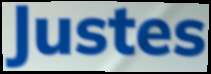
Justes